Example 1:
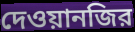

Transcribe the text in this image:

দেওয়ানজির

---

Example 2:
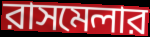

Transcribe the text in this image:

রাসমেলার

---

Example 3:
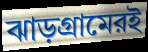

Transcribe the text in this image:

ঝাড়গ্রামেরই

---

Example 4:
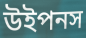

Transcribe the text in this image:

উইপনস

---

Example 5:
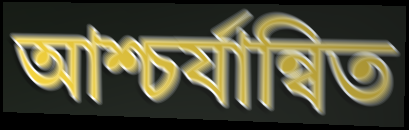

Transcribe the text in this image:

আশ্চর্যান্বিত